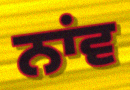
ਨਾਂਵ